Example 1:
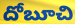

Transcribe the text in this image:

దోబూచి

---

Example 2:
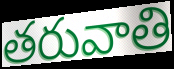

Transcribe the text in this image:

తరువాతి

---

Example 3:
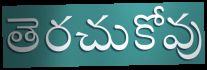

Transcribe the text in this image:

తెరచుకోవు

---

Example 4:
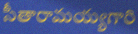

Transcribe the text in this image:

సీతారామయ్యగారి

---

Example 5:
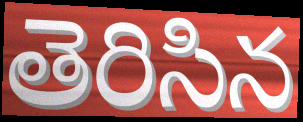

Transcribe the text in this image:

తెరిసిన